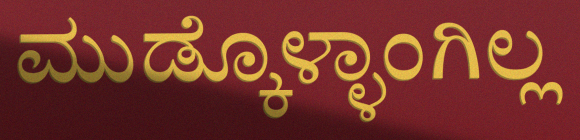
ಮುಡ್ಕೊಳ್ಳಾಂಗಿಲ್ಲ